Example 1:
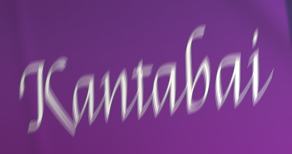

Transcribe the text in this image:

Kantabai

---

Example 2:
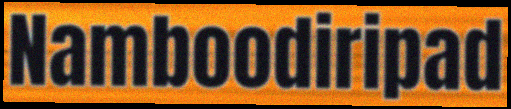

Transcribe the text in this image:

Namboodiripad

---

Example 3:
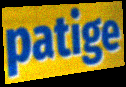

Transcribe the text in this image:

patige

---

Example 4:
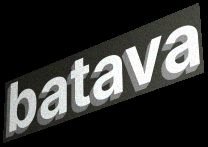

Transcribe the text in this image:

batava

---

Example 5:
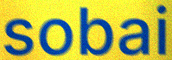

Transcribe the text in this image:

sobai